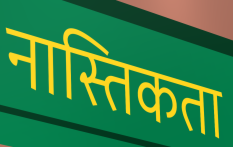
नास्तिकता